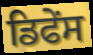
ਡਿਫੇਂਸ